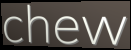
chew